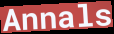
Annals